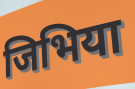
जिभिया